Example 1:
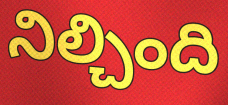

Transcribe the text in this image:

నిల్చింది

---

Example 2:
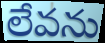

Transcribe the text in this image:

లేవను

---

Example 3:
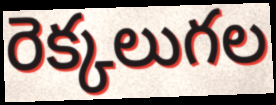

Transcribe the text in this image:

రెక్కలుగల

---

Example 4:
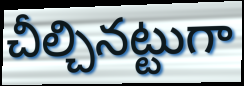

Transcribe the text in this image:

చీల్చినట్టుగా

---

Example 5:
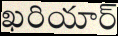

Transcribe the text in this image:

ఖరియార్